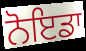
ਨੋਇਡਾ